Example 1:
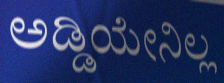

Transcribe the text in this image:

ಅಡ್ಡಿಯೇನಿಲ್ಲ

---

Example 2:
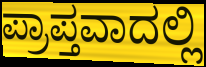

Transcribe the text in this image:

ಪ್ರಾಪ್ತವಾದಲ್ಲಿ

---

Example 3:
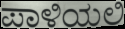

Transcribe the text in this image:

ಪಾಳಿಯಲಿ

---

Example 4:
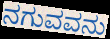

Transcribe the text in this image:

ನಗುವವನು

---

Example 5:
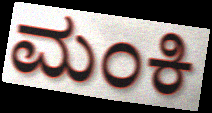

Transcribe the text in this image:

ಮಂಕಿ